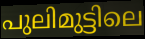
പുലിമുട്ടിലെ